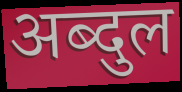
अब्दुल